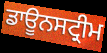
ਡਾਊਨਸਟ੍ਰੀਮ